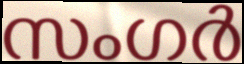
സംഗർ